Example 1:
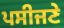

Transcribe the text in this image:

ਪਸੀਜਣੇ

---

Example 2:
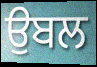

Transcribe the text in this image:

ਉਬਲ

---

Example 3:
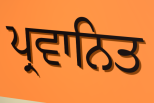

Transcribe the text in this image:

ਪ੍ਰਵਾਨਿਤ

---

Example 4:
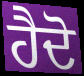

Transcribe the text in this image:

ਹੈਦੋ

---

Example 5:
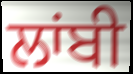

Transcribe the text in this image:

ਲਾਂਬੀ